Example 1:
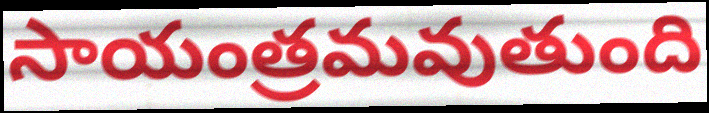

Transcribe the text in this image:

సాయంత్రమవుతుంది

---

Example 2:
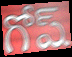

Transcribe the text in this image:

గోష్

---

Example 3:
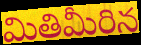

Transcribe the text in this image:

మితిమీరిన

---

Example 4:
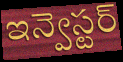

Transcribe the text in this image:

ఇన్వెస్టర్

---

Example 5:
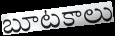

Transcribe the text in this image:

బూటకాలు